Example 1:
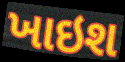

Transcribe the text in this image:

ખાઇશ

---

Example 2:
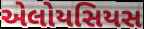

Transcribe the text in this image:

એલોયસિયસ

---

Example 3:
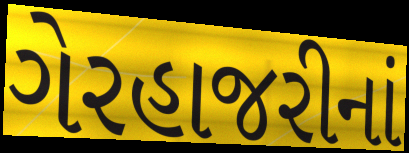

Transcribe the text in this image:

ગેરહાજરીનાં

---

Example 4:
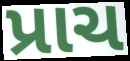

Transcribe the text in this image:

પ્રાચ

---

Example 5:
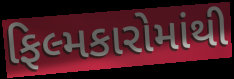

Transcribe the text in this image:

ફિલ્મકારોમાંથી